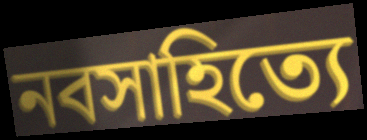
নবসাহিত্যে